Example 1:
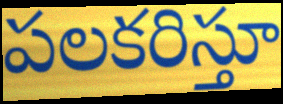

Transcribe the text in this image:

పలకరిస్తూ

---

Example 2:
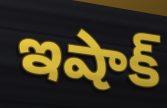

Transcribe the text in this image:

ఇషాక్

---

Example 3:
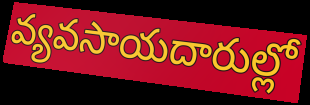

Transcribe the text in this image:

వ్యవసాయదారుల్లో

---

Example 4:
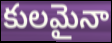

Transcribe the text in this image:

కులమైనా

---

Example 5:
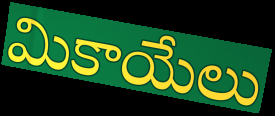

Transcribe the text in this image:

మికాయేలు